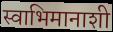
स्वाभिमानाशी